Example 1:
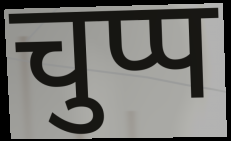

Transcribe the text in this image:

चुप्प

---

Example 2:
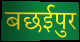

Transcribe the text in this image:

बछईपुर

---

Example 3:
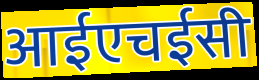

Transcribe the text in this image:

आईएचईसी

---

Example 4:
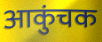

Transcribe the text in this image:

आकुंचक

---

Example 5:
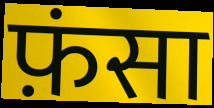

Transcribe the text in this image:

फ़ंसा